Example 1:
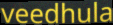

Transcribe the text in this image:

veedhula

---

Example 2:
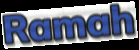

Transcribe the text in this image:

Ramah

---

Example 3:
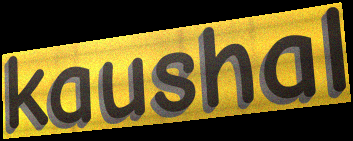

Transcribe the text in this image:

kaushal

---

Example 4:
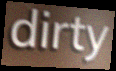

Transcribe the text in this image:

dirty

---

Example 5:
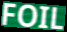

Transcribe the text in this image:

FOIL